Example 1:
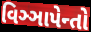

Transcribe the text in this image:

વિઞ્ઞાપેન્તો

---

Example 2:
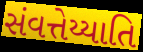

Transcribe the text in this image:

સંવત્તેય્યાતિ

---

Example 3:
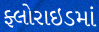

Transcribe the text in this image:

ફ્લોરાઇડમાં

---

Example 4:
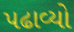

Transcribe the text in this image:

પઢાવ્યો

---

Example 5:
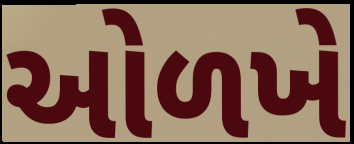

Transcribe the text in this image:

ઓળખે